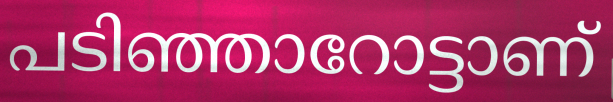
പടിഞ്ഞാറോട്ടാണ്